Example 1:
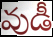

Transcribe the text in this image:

వుడీ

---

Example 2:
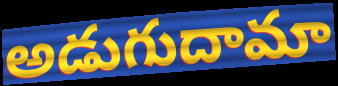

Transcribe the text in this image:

అడుగుదామా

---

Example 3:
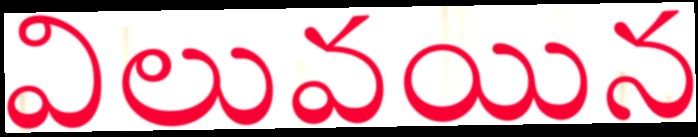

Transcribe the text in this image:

విలువయిన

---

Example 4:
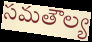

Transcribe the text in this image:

సమతౌల్య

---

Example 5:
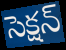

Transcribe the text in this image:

సెక్షన్